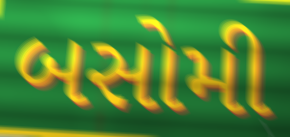
બસોમી